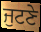
ਜੁਟਣੇ